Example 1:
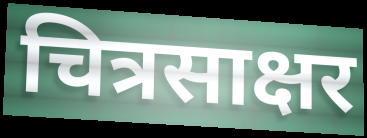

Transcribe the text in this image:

चित्रसाक्षर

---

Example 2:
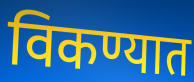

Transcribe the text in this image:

विकण्यात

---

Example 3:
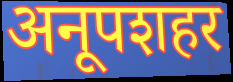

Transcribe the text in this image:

अनूपशहर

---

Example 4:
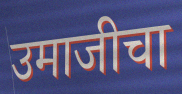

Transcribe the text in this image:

उमाजीचा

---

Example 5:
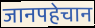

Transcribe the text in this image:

जानपहेचान